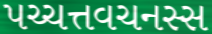
પચ્ચત્તવચનસ્સ